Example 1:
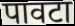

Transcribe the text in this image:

पावटा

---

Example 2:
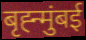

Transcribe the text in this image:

बृह्न्मुंबई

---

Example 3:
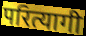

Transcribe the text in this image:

परित्यागी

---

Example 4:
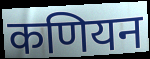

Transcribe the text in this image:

कणियन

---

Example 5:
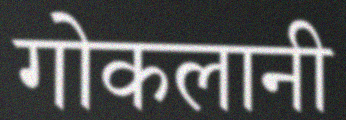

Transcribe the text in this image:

गोकलानी